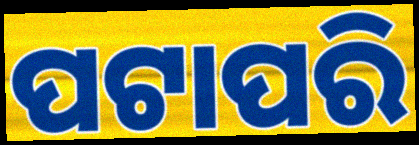
ପଟାପରି